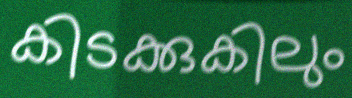
കിടക്കുകിലും